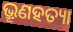
ଭ୍ରୂଣହତ୍ୟା